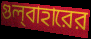
গুল্‌বাহারের